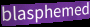
blasphemed